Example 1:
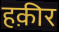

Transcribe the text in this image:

हक़ीर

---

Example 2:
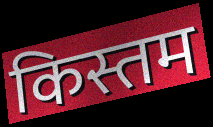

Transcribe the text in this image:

किस्तम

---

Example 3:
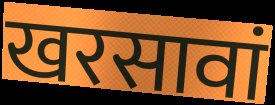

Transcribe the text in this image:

खरसावां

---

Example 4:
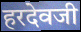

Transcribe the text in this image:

हरदेवजी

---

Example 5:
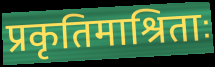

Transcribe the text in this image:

प्रकृतिमाश्रिताः